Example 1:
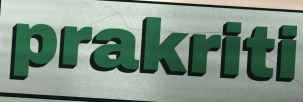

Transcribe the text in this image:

prakriti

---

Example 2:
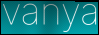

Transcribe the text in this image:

vanya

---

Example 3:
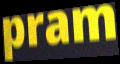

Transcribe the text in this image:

pram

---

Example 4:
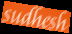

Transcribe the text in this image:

sudhesh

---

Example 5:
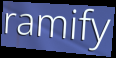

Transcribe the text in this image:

ramify